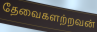
தேவைகளற்றவன்